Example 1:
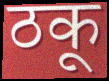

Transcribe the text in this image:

ठकू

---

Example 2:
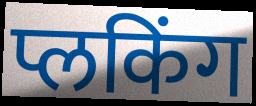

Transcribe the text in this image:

प्लकिंग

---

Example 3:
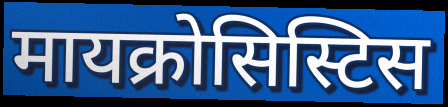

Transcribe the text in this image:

मायक्रोसिस्टिस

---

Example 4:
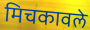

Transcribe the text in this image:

मिचकावले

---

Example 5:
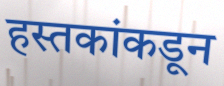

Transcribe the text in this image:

हस्तकांकडून